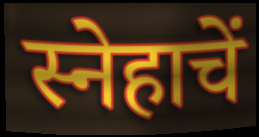
स्नेहाचें